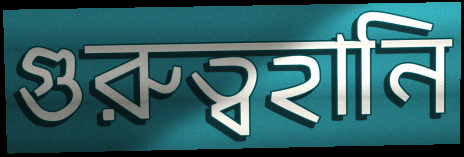
গুরুত্বহানি